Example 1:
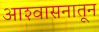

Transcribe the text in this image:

आश्वासनातून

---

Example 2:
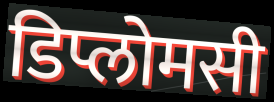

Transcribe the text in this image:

डिप्लोमसी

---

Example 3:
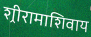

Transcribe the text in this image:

श्रीरामाशिवाय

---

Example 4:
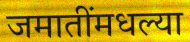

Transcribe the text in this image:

जमातींमधल्या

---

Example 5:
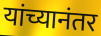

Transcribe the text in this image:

यांच्यानंतर